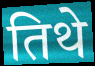
तिथे